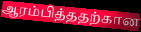
ஆரம்பித்ததற்கான